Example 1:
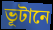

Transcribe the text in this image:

ভূটানে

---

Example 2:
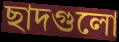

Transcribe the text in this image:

ছাদগুলো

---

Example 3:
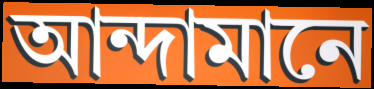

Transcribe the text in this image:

আন্দামানে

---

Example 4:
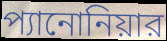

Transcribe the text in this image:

প্যানোনিয়ার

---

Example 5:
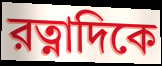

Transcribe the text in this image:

রত্নাদিকে